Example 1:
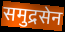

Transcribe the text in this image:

समुद्रसेन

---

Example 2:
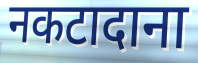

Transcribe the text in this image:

नकटादाना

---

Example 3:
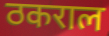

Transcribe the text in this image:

ठकराल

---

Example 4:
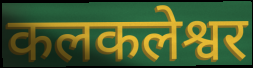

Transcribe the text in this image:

कलकलेश्वर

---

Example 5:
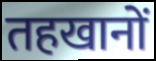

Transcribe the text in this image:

तहखानों